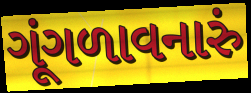
ગૂંગળાવનારું